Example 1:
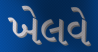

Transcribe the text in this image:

ખેલવે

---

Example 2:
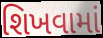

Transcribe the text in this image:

શિખવામાં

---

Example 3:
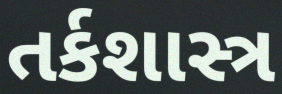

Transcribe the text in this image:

તર્કશાસ્ત્ર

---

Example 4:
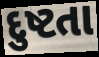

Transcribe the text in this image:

દુષ્ટતા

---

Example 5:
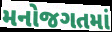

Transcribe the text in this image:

મનોજગતમાં